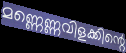
മണ്ണെണ്ണവിളക്കിന്റെ